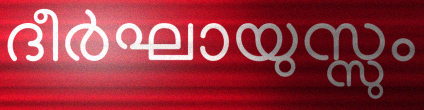
ദീർഘായുസ്സും